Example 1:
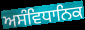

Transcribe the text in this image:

ਅਸੰਵਿਧਾਨਿਕ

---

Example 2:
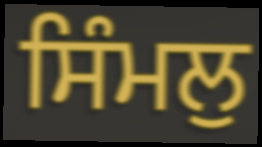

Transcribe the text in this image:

ਸਿੰਮਲੁ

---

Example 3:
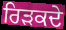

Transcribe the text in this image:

ਰਿੜਕਦੇ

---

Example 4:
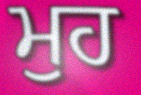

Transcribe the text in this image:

ਮੁਹ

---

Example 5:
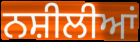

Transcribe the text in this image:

ਨਸ਼ੀਲੀਆਂ